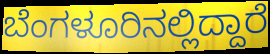
ಬೆಂಗಳೂರಿನಲ್ಲಿದ್ದಾರೆ